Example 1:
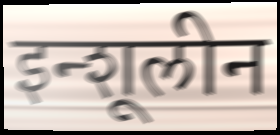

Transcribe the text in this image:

इन्शूलीन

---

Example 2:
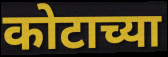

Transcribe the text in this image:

कोटाच्या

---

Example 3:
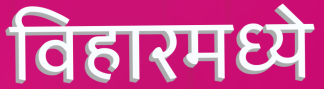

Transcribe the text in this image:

विहारमध्ये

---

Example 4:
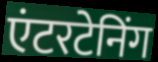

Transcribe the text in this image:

एंटरटेनिंग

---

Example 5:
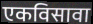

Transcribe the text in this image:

एकविसावा